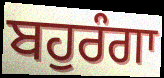
ਬਹੁਰੰਗਾ